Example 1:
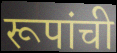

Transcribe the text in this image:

रूपांची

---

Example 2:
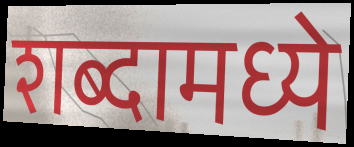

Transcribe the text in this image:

शब्दामध्ये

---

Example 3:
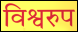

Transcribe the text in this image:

विश्वरुप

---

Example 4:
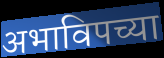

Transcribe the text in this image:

अभाविपच्या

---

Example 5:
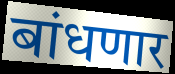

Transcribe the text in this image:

बांधणार